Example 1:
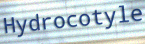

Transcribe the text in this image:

Hydrocotyle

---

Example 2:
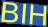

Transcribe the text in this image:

BIH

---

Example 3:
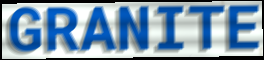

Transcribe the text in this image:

GRANITE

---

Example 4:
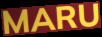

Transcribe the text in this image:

MARU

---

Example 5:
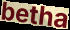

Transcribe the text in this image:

betha